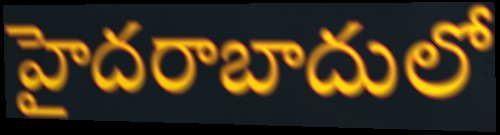
హైదరాబాదులో